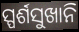
ସ୍ପର୍ଶସୁଖାନି